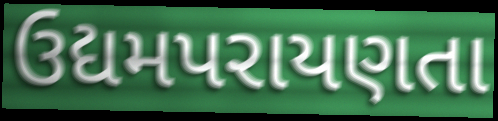
ઉદ્યમપરાયણતા